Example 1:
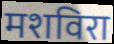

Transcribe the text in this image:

मशविरा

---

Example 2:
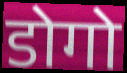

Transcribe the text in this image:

डोगो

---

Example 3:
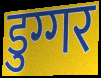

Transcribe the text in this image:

डुग्गर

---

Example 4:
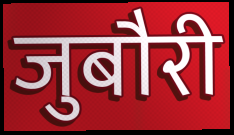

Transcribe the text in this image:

जुबौरी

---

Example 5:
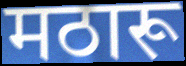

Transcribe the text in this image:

मठारू